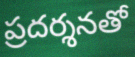
ప్రదర్శనతో